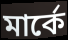
মাৰ্কে